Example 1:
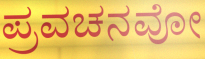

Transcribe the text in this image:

ಪ್ರವಚನವೋ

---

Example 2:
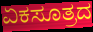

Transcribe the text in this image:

ಏಕಸೂತ್ರದ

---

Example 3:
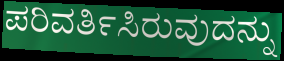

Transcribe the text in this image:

ಪರಿವರ್ತಿಸಿರುವುದನ್ನು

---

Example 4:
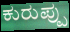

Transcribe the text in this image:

ಕುರುಪ್ಪು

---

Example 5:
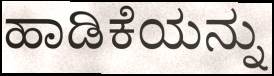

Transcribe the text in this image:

ಹಾಡಿಕೆಯನ್ನು